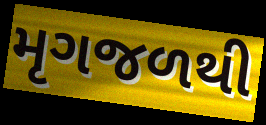
મૃગજળથી